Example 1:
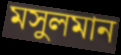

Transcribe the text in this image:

মসুলমান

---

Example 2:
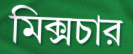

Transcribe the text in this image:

মিক্সচার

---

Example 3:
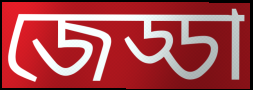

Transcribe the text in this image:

জেড্ডা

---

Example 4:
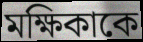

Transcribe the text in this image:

মক্ষিকাকে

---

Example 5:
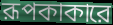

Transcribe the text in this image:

রূপকাকারে